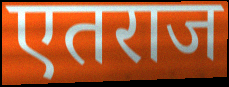
एतराज